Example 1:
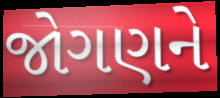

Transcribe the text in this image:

જોગણને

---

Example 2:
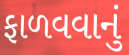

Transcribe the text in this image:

ફાળવવાનું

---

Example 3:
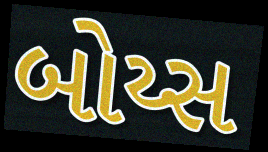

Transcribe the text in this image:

બોય્સ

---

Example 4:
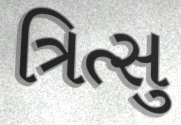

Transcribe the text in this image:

ત્રિત્સુ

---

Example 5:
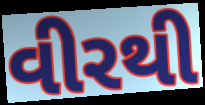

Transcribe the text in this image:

વીરથી